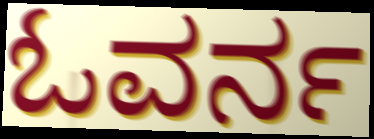
ಓವರ್ನ